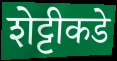
शेट्टीकडे